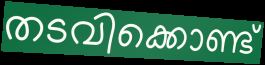
തടവിക്കൊണ്ട്